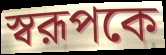
স্বরূপকে